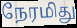
நேரமிது